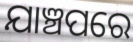
ଯାଞ୍ଚପରେ